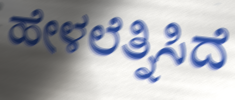
ಹೇಳಲೆತ್ನಿಸಿದೆ